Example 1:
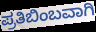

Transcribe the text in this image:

ಪ್ರತಿಬಿಂಬವಾಗಿ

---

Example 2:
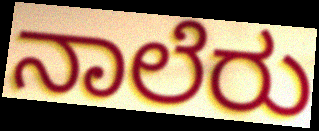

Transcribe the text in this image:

ನಾಲೆರು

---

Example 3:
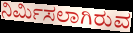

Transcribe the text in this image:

ನಿರ್ಮಿಸಲಾಗಿರುವ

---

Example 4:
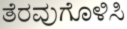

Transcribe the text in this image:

ತೆರವುಗೊಳಿಸಿ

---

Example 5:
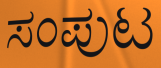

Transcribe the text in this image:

ಸಂಪುಟ